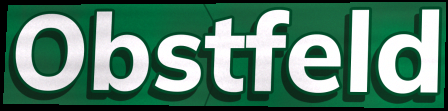
Obstfeld